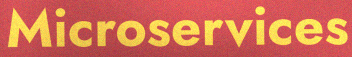
Microservices